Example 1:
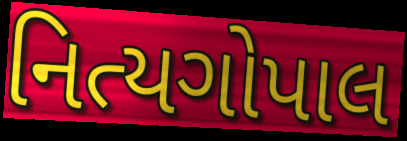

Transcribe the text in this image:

નિત્યગોપાલ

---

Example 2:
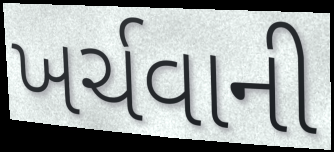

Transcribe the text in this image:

ખર્ચવાની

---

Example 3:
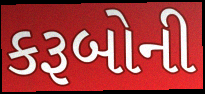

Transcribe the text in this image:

કરૂબોની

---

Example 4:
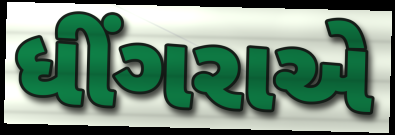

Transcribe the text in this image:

ધીંગરાએ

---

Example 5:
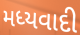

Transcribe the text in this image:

મધ્યવાદી